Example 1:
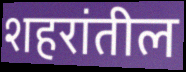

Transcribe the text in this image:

शहरांतील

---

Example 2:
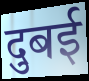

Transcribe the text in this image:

दुबई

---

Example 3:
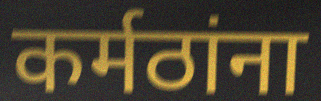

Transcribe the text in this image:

कर्मठांना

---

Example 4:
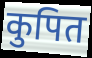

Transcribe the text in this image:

कुपित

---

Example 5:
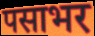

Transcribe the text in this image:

पसाभर